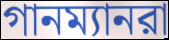
গানম্যানরা